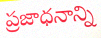
ప్రజాధనాన్ని